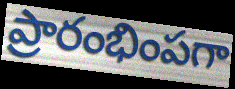
ప్రారంభింపగా